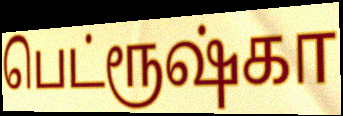
பெட்ரூஷ்கா